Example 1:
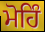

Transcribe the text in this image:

ਮੋਹਿੰ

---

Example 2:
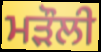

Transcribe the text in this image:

ਮੜੌਲੀ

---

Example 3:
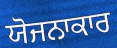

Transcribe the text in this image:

ਯੋਜਨਾਕਾਰ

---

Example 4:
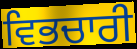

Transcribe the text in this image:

ਵਿਭਚਾਰੀ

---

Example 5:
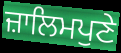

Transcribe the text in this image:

ਜ਼ਾਲਿਮਪੁਣੇ